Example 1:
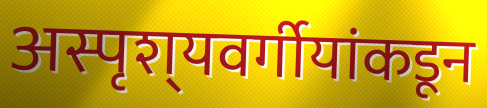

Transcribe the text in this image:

अस्पृश्यवर्गीयांकडून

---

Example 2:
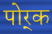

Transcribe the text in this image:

पोर्क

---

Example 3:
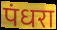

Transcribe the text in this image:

पंधरा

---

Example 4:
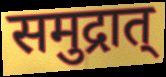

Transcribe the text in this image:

समुद्रात्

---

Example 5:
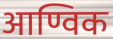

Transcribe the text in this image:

आण्विक